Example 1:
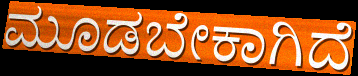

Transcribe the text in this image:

ಮೂಡಬೇಕಾಗಿದೆ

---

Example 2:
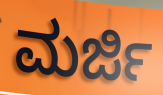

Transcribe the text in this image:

ಮರ್ಜಿ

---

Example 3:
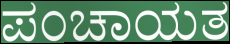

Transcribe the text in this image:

ಪಂಚಾಯತ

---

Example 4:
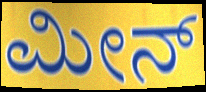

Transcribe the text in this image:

ಮೀನ್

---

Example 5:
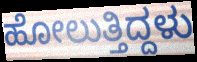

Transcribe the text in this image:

ಹೋಲುತ್ತಿದ್ದಳು